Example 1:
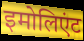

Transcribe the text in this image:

इमोलिएंट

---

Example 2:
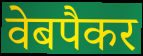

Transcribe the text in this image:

वेबपैकर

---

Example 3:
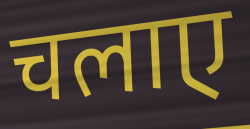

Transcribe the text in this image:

चलाए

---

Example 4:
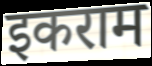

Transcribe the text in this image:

इकराम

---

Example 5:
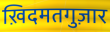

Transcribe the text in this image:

ख़िदमतगुज़ार